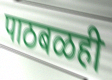
पाठबळही